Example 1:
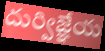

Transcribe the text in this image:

దుర్విజ్ఞేయ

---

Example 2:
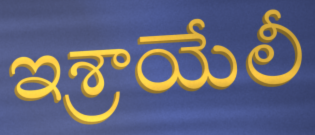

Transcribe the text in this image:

ఇశ్రాయేలీ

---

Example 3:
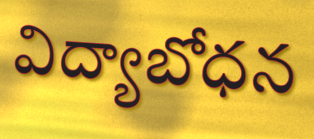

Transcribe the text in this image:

విద్యాబోధన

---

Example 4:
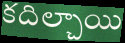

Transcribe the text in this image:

కదిల్చాయి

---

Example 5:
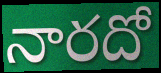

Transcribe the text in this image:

నారదో